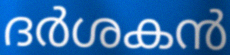
ദർശകൻ